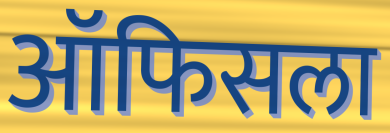
ऑफिसला